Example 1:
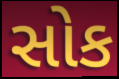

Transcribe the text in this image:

સોક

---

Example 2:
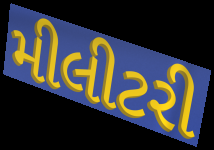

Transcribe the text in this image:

મીલીટરી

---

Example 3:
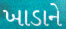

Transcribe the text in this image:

ખાડાને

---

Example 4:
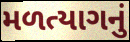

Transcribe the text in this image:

મળત્યાગનું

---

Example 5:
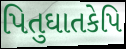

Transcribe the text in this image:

પિતુઘાતકેપિ